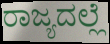
ರಾಜ್ಯದಲ್ಲೆ